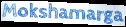
Mokshamarga